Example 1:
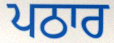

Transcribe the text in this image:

ਪਠਾਰ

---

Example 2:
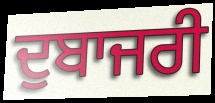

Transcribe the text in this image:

ਦੁਬਾਜਰੀ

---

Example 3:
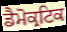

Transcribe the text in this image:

ਡੈਮੋਕ੍ਰਟਿਕ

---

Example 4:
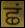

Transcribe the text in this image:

ਛਂ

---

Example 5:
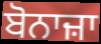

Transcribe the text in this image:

ਬੋਨਾਜ਼ਾ